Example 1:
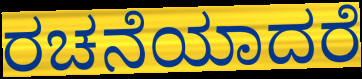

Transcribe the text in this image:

ರಚನೆಯಾದರೆ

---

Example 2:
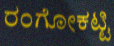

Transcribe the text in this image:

ರಂಗೋಕಟ್ಟಿ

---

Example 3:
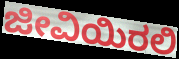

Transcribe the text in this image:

ಜೀವಿಯಿರಲಿ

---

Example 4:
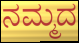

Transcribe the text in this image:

ನಮ್ಮದ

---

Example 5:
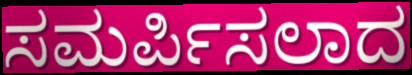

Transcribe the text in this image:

ಸಮರ್ಪಿಸಲಾದ